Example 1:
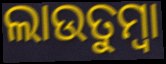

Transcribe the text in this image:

ଲାଉତୁମ୍ବା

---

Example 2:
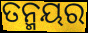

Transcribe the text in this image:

ତନ୍ମୟର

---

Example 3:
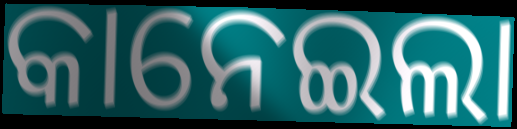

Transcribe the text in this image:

କାନେଇଲା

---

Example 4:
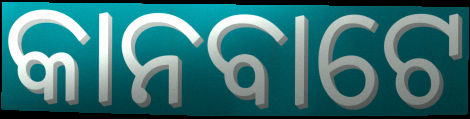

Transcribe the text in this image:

କାନବାଟେ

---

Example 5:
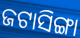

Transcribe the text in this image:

ଜଟାସିଙ୍ଗା